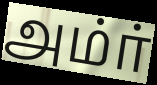
அம்ர்